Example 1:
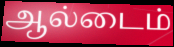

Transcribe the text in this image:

ஆல்டைம்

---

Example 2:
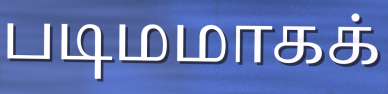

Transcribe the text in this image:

படிமமாகக்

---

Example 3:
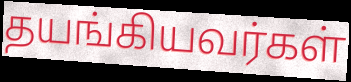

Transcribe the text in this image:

தயங்கியவர்கள்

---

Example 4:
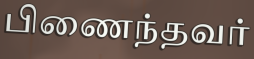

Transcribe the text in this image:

பிணைந்தவர்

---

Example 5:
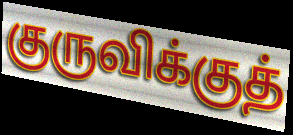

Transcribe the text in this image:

குருவிக்குத்